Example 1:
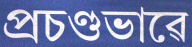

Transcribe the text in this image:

প্ৰচণ্ডভাৱে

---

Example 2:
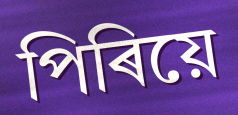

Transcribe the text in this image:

পিৰিয়ে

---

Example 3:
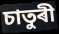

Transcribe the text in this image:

চাতুৰী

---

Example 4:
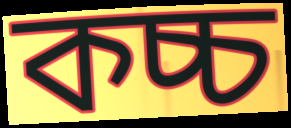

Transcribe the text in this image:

কচ্চ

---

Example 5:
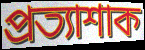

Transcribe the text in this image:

প্ৰত্যাশাক